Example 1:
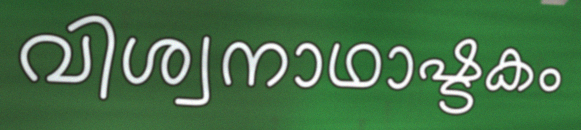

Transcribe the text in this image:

വിശ്വനാഥാഷ്ടകം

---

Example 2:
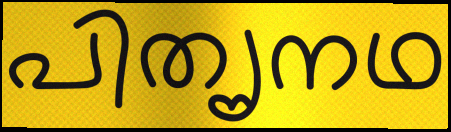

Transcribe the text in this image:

പിതൄനഥ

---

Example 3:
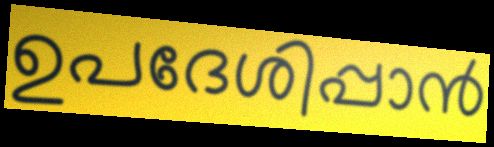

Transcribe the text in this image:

ഉപദേശിപ്പാൻ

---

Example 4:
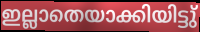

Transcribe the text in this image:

ഇല്ലാതെയാക്കിയിട്ടു്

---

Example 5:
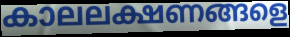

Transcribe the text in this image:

കാലലക്ഷണങ്ങളെ